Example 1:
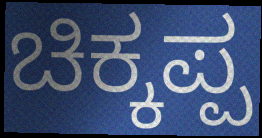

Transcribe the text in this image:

ಚಿಕ್ಕಪ್ಪ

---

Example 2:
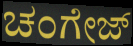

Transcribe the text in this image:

ಚಂಗೇಜ್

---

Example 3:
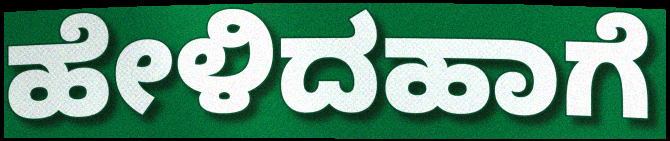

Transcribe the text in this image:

ಹೇಳಿದಹಾಗೆ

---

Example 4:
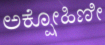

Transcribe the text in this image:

ಅಕ್ಷೋಹಿಣೀ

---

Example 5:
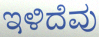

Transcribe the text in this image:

ಇಳಿದೆವು